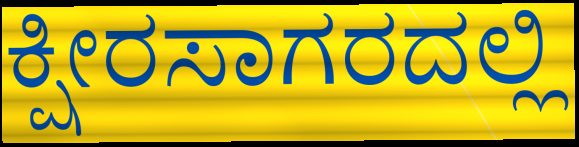
ಕ್ಷೀರಸಾಗರದಲ್ಲಿ